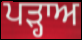
ਪੜ੍ਹਾਅ